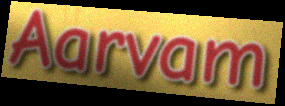
Aarvam